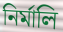
নিৰ্মালি